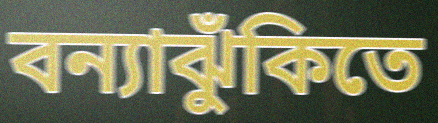
বন্যাঝুঁকিতে